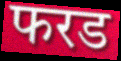
फरड